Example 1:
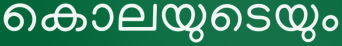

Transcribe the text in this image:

കൊലയുടെയും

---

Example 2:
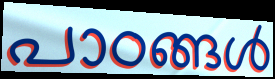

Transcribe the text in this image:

പാഠങ്ങൾ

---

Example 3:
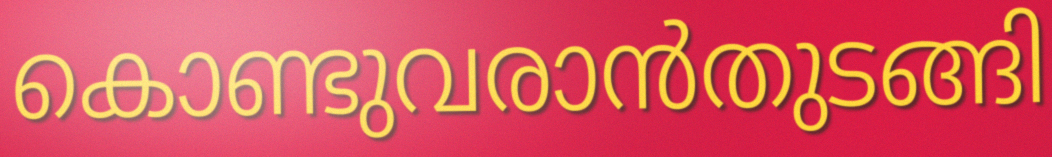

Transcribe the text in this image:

കൊണ്ടുവരാൻതുടങ്ങി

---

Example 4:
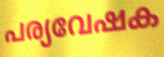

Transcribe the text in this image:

പര്യവേഷക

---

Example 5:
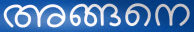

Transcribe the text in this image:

അങ്ങനെ